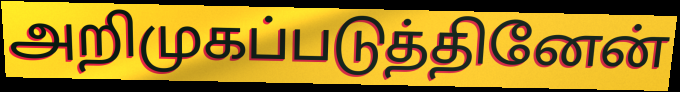
அறிமுகப்படுத்தினேன்